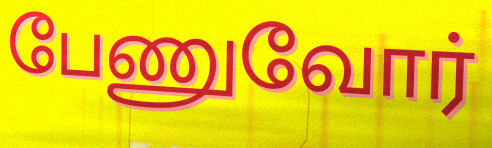
பேணுவோர்